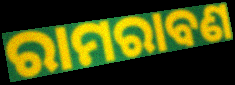
ରାମରାବଣ